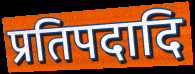
प्रतिपदादि